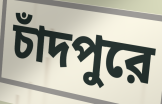
চাঁদপুরে